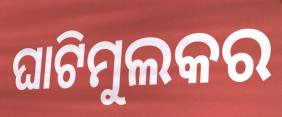
ଘାଟିମୁଲକର